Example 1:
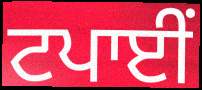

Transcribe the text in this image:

ਟਪਾਈਂ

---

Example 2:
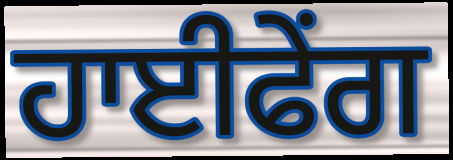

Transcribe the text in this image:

ਹਾਈਫੇਂਗ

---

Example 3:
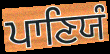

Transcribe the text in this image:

ਪਾਣਿਯੰ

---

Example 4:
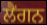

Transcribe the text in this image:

ਲੈਂਗਨ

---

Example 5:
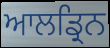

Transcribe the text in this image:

ਆਲਡ੍ਰਿਨ